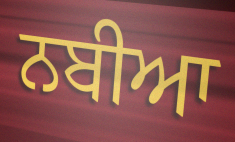
ਨਬੀਆ